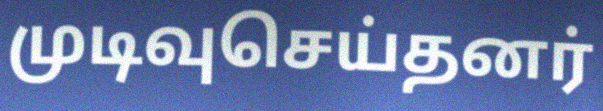
முடிவுசெய்தனர்